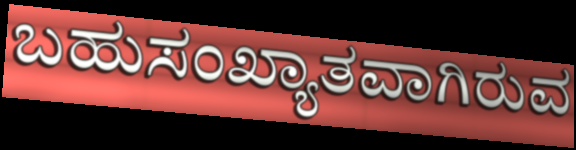
ಬಹುಸಂಖ್ಯಾತವಾಗಿರುವ